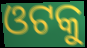
ଓଟକୁ